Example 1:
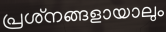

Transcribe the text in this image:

പ്രശ്‌നങ്ങളായാലും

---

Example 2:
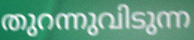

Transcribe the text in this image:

തുറന്നുവിടുന്ന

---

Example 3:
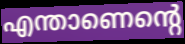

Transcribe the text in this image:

എന്താണെന്റെ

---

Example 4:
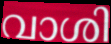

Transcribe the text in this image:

വാശി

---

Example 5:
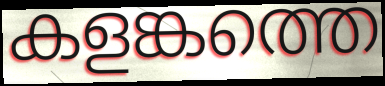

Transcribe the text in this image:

കളങ്കത്തെ